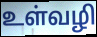
உள்வழி